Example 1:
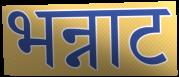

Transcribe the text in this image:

भन्नाट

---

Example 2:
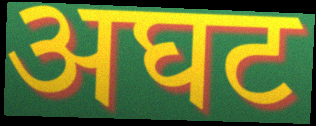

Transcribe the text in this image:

अघट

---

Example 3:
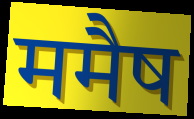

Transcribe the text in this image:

ममैष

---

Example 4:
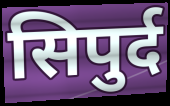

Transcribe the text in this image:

सिपुर्द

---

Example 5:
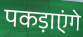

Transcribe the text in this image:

पकड़ाएंगे